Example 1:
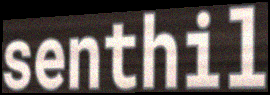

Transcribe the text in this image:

senthil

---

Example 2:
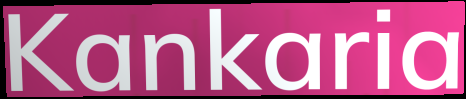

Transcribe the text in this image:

Kankaria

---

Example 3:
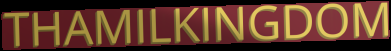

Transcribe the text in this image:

THAMILKINGDOM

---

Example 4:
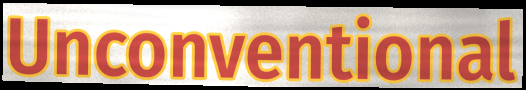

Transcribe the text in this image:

Unconventional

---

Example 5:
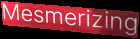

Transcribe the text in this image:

Mesmerizing